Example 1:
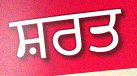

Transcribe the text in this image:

ਸ਼ਰਤ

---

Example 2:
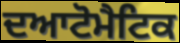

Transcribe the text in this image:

ਦਆਟੋਮੈਟਿਕ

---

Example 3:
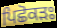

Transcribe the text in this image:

ਪਿਛੋਕੜਃ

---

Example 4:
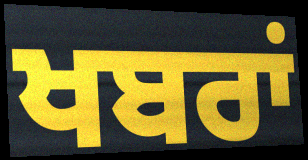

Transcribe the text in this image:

ਖਬਰਾਂ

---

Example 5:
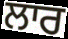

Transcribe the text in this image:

ਲਾਰ